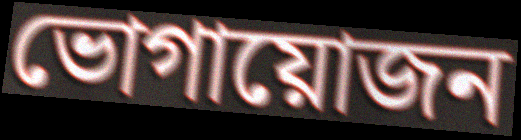
ভোগায়োজন